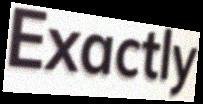
Exactly